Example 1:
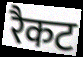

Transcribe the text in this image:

रैकट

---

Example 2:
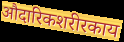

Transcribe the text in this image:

औदारिकशरीरकाय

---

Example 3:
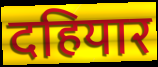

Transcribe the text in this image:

दहियार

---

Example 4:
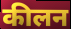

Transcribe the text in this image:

कीलन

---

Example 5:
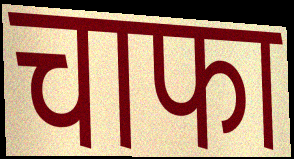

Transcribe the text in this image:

चाफा